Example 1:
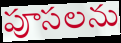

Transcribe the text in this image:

పూసలను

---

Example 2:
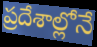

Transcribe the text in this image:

ప్రదేశాల్లోనే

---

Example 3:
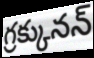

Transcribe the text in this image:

గ్రక్కునన్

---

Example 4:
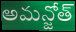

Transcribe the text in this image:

అమన్జోత్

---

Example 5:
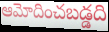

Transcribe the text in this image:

ఆమోదించబడ్డది